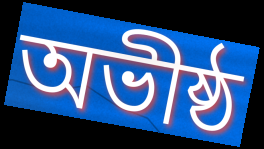
অভীষ্ঠ